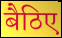
बैठिए